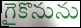
గైకొనును